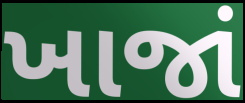
ખાજાં